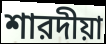
শারদীয়া